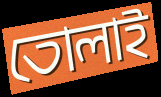
তোলাই